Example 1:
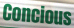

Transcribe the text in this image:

Concious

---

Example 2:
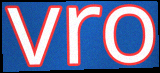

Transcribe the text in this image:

vro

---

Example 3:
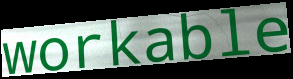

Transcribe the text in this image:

workable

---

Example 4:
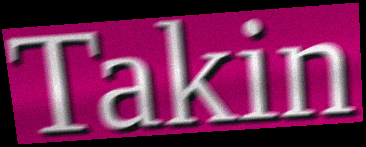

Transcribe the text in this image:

Takin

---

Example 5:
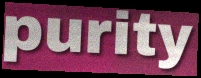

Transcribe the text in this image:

purity